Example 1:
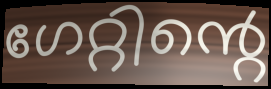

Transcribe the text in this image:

ഗേറ്റിന്റെ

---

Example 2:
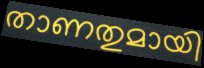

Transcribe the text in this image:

താണതുമായി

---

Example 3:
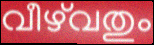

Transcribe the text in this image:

വീഴ്‌വതും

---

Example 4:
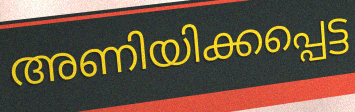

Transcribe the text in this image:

അണിയിക്കപ്പെട്ട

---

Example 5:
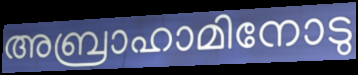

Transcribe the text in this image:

അബ്രാഹാമിനോടു